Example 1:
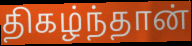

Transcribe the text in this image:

திகழ்ந்தான்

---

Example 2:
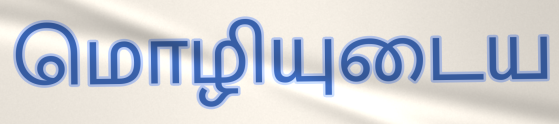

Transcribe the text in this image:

மொழியுடைய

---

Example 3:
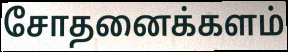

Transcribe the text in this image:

சோதனைக்களம்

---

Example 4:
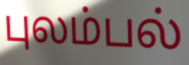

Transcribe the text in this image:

புலம்பல்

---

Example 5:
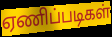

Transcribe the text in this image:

ஏணிப்படிகள்